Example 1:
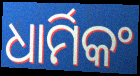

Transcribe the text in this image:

ଧାର୍ମିକଂ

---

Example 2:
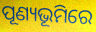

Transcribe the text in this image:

ପୂଣ୍ୟଭୂମିରେ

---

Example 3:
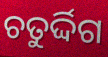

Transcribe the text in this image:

ଚତୁର୍ଦ୍ଦିଗ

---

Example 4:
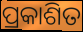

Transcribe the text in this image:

ପ୍ରକାଶିତ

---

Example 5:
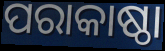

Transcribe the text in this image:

ପରାକାଷ୍ଠା